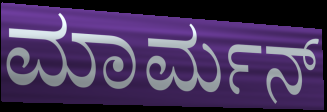
ಮಾರ್ಮನ್